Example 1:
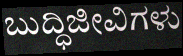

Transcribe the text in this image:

ಬುದ್ಧಿಜೀವಿಗಳು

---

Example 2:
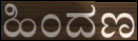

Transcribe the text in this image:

ಹಿಂದಣ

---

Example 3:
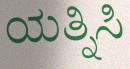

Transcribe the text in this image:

ಯತ್ನಿಸಿ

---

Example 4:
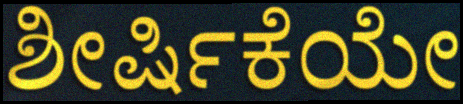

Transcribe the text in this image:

ಶೀರ್ಷಿಕೆಯೇ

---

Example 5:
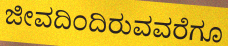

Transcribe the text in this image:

ಜೀವದಿಂದಿರುವವರೆಗೂ